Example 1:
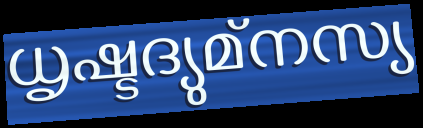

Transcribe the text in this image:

ധൃഷ്ടദ്യുമ്നസ്യ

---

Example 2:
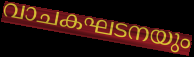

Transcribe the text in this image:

വാചകഘടനയും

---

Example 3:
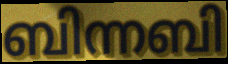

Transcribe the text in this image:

ബിന്നബി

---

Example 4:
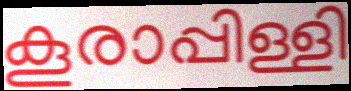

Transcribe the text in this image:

കൂരാപ്പിള്ളി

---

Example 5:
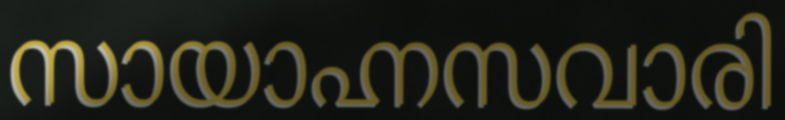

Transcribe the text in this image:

സായാഹ്നസവാരി